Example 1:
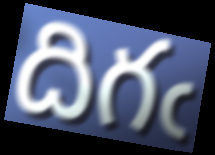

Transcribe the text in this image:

దిగఁ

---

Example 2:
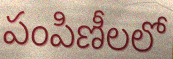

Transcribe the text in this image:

పంపిణీలలో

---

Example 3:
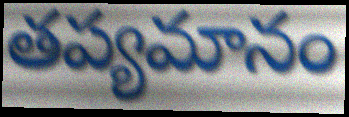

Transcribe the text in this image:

తప్యమానం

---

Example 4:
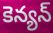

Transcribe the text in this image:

కెన్యన్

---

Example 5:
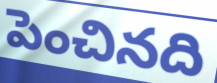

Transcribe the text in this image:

పెంచినది